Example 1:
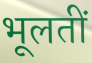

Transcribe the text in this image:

भूलतीं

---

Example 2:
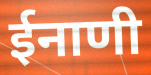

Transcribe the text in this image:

ईनाणी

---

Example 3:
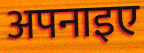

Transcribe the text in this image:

अपनाइए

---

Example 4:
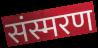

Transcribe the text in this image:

संस्मरण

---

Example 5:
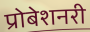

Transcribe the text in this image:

प्रोबेशनरी